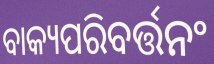
ବାକ୍ୟପରିବର୍ତ୍ତନଂ